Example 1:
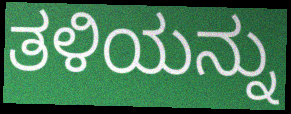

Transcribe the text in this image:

ತಳಿಯನ್ನು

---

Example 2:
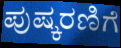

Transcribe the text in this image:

ಪುಷ್ಕರಣಿಗೆ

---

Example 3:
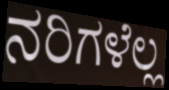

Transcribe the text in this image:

ನರಿಗಳೆಲ್ಲ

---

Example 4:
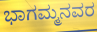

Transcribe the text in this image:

ಭಾಗಮ್ಮನವರ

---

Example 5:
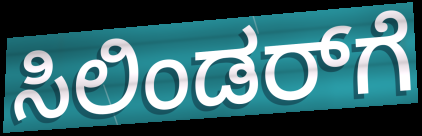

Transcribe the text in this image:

ಸಿಲಿಂಡರ್‌ಗೆ